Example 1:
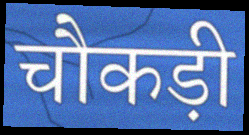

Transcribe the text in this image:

चौकड़ी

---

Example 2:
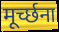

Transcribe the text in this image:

मूर्च्छना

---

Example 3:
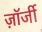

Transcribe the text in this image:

ज़ॉर्जी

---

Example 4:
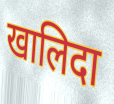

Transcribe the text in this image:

खालिदा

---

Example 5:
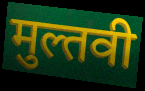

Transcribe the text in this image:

मुल्तवी